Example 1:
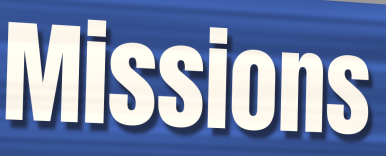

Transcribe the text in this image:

Missions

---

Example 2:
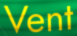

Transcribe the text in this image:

Vent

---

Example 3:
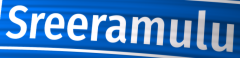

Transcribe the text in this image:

Sreeramulu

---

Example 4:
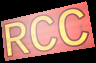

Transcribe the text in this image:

RCC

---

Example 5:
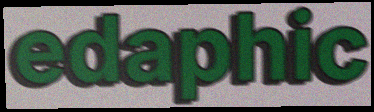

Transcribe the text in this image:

edaphic